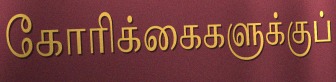
கோரிக்கைகளுக்குப்